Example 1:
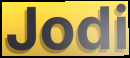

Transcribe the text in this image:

Jodi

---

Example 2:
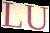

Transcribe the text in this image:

LU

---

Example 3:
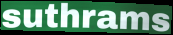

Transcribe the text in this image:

suthrams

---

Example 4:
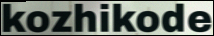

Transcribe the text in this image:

kozhikode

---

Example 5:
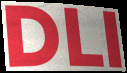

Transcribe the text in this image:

DLI